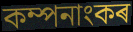
কম্পনাংকৰ